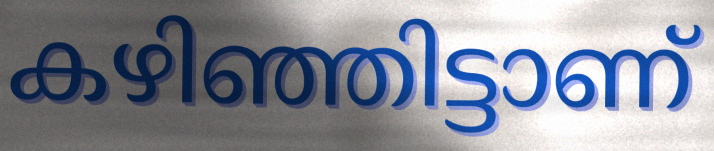
കഴിഞ്ഞിട്ടാണ്